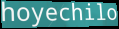
hoyechilo